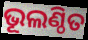
ଭୂଲଣ୍ଠିତ